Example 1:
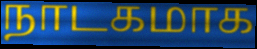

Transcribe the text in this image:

நாடகமாக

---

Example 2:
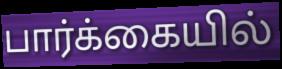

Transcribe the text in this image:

பார்க்கையில்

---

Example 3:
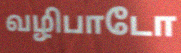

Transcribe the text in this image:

வழிபாடோ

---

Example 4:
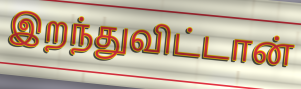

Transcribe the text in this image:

இறந்துவிட்டான்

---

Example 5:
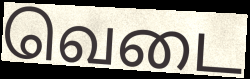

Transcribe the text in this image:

வெடை